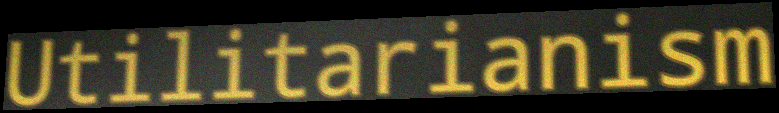
Utilitarianism